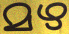
മഴ